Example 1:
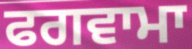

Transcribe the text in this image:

ਫਗਵਾਮਾ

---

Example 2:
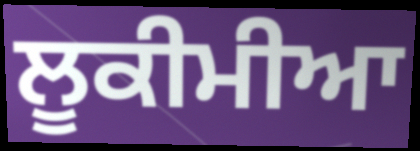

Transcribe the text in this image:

ਲੂਕੀਮੀਆ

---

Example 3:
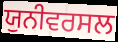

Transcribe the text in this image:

ਯੁਨੀਵਰਸਲ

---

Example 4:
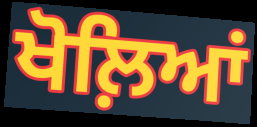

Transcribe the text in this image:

ਖੋਲ਼ਿਆਂ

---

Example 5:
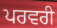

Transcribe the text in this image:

ਪਰਵਰੀ